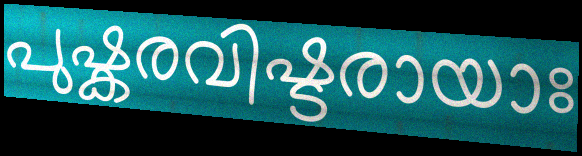
പുഷ്കരവിഷ്ടരായാഃ